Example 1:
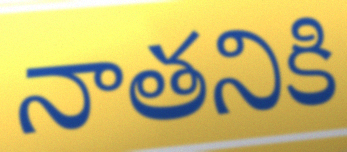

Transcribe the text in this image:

నాతనికి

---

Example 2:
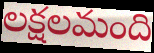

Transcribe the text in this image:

లక్షలమంది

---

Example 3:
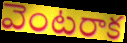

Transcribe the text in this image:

వెంటరాక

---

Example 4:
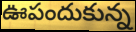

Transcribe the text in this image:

ఊపందుకున్న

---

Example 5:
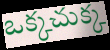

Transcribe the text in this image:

ఒక్కచుక్క